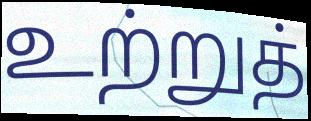
உற்றுத்